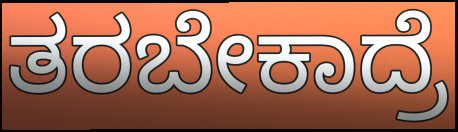
ತರಬೇಕಾದ್ರೆ